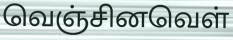
வெஞ்சினவெள்